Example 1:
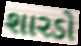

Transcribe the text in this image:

શારડો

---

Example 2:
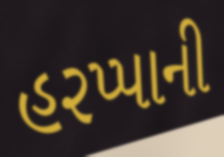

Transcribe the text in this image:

હરપ્પાની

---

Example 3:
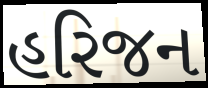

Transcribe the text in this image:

હરિજન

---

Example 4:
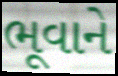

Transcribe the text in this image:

ભૂવાને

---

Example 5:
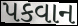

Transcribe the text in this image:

પકવાન